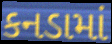
કનડામાં